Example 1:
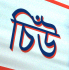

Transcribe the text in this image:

চিঁউ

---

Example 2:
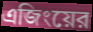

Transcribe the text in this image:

এজিংয়ের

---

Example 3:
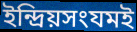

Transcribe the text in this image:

ইন্দ্রিয়সংযমই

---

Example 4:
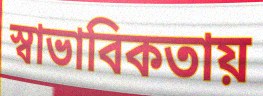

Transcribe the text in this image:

স্বাভাবিকতায়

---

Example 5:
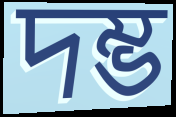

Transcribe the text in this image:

দম্ভ